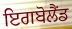
ਇਗਬੋਲੈਂਡ